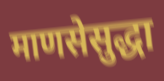
माणसेसुद्धा